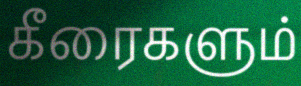
கீரைகளும்